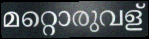
മറ്റൊരുവള്